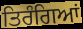
ਤਿਰੰਗਿਆਂ